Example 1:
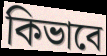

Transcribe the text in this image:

কিভাবে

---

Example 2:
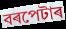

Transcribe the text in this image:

বৰপেটাৰ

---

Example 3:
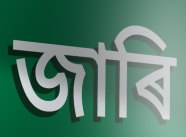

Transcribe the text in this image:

জাৰি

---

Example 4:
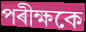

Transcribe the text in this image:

পৰীক্ষকে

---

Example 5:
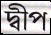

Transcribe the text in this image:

দ্বীপ